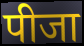
पीजा